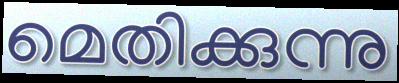
മെതിക്കുന്നു